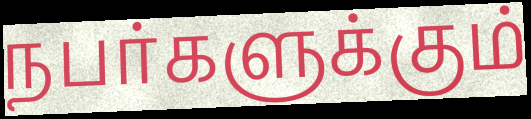
நபர்களுக்கும்